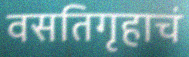
वसतिगृहाचं